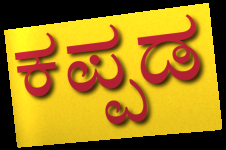
ಕಪ್ಪಡ